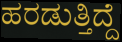
ಹರಡುತ್ತಿದ್ದೆ